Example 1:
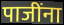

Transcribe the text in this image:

पाजींना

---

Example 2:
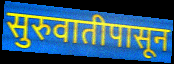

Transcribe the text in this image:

सुरुवातीपासून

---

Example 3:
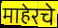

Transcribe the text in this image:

माहेरचे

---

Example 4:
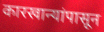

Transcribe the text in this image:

कारखान्यांपासून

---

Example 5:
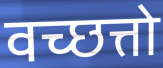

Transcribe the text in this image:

वच्छत्तो